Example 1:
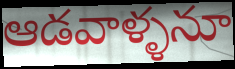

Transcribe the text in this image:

ఆడవాళ్ళనూ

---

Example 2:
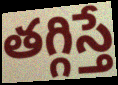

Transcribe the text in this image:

తగ్గిస్తే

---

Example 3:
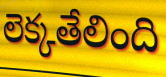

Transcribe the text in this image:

లెక్కతేలింది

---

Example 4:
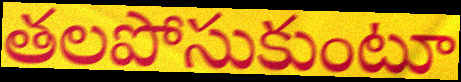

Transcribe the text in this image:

తలపోసుకుంటూ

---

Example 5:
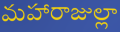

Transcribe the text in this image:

మహారాజుల్లా